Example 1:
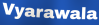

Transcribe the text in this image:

Vyarawala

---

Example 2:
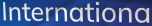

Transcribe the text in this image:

Internationa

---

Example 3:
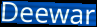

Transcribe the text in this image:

Deewar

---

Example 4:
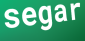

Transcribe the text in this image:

segar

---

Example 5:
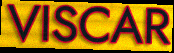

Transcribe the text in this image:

VISCAR